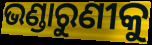
ଭଣ୍ଡାରୁଣୀକୁ